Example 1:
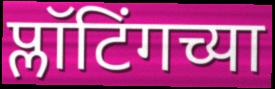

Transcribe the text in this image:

प्लॉटिंगच्या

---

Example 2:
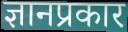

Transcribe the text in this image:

ज्ञानप्रकार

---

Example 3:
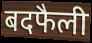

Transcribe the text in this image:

बदफैली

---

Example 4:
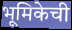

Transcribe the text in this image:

भूमिकेची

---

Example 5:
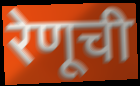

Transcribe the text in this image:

रेणूची